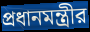
প্রধানমন্ত্রীর